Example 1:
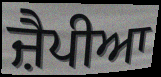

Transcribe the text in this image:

ਜ਼ੈਪੀਆ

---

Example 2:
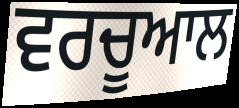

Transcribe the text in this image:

ਵਰਚੂਆਲ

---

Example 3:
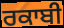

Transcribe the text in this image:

ਰਕਾਬੀ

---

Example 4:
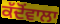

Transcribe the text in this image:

ਕੱਦੋਂਵਾਲਾ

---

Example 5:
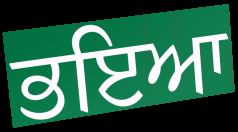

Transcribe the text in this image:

ਭਇਆ